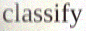
classify